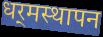
धर्मस्थापन